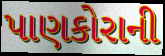
પાણકોરાની